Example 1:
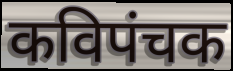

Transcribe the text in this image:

कविपंचक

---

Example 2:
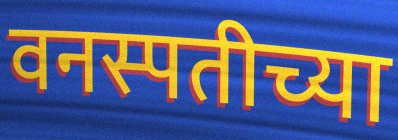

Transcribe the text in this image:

वनस्पतीच्या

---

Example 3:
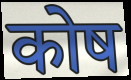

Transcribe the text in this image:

कोष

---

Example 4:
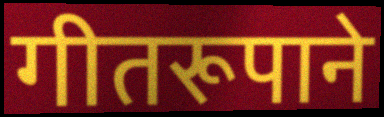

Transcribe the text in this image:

गीतरूपाने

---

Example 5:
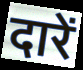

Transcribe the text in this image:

दारें